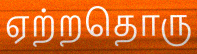
ஏற்றதொரு